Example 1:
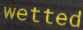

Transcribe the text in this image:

wetted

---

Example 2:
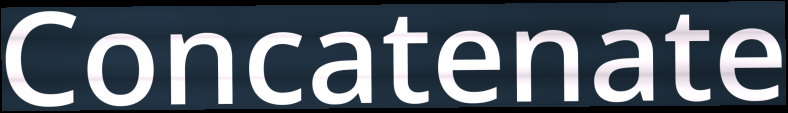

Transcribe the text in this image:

Concatenate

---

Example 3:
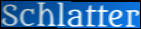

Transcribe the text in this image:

Schlatter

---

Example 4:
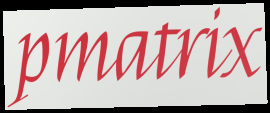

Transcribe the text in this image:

pmatrix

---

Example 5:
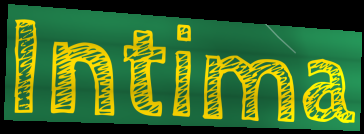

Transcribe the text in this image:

Intima